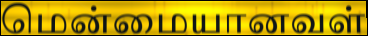
மென்மையானவள்